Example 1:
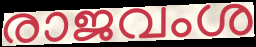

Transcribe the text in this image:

രാജവംശ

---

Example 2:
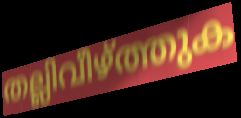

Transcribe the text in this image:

തല്ലിവീഴ്ത്തുക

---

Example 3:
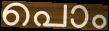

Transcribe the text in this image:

പൊം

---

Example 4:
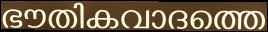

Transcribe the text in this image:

ഭൗതികവാദത്തെ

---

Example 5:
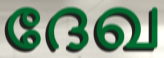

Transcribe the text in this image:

ദേഖ